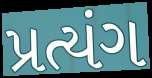
પ્રત્યંગ